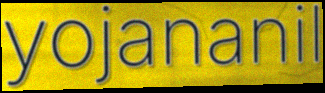
yojananil